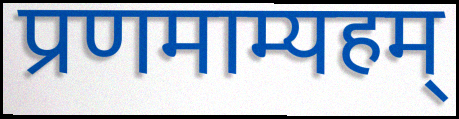
प्रणमाम्यहम्